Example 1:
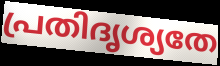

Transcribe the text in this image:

പ്രതിദൃശ്യതേ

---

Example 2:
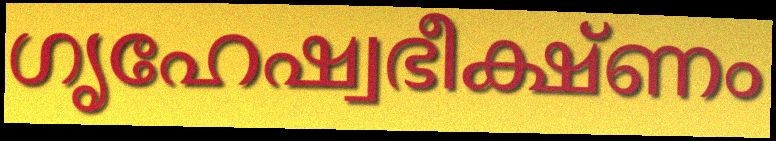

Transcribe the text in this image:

ഗൃഹേഷ്വഭീക്ഷ്ണം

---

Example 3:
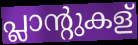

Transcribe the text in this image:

പ്ലാന്റുകള്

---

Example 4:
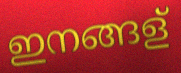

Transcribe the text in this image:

ഇനങ്ങള്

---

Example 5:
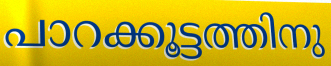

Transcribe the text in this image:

പാറക്കൂട്ടത്തിനു